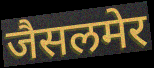
जैसलमेर